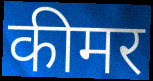
कीमर